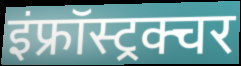
इंफ्रॉस्ट्रक्चर